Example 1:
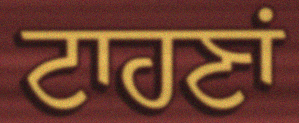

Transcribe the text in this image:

ਟਾਹਣਾਂ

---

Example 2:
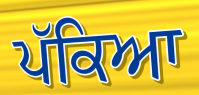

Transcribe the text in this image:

ਪੱਕਿਆ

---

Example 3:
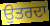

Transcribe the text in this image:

ਉਤਰਦਾ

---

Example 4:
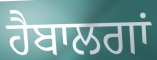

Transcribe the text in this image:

ਹੈਬਾਲਗਾਂ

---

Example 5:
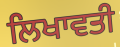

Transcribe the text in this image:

ਲਿਖਾਵਤੀ